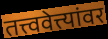
तत्त्ववेत्त्यांवर